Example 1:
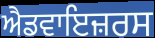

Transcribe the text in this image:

ਐਡਵਾਇਜ਼ਰਸ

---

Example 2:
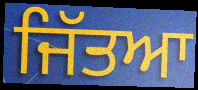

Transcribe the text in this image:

ਜਿੱਤਆ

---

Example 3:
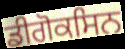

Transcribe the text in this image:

ਡੀਗੋਕਸਿਨ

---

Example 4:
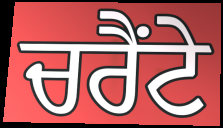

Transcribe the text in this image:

ਚਰੈਂਟੇ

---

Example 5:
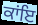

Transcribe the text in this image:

ਕਾਂਇ